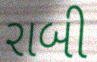
રાબી